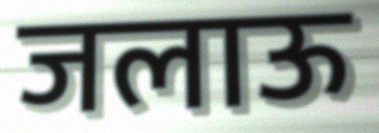
जलाऊ